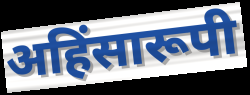
अहिंसारूपी